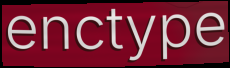
enctype